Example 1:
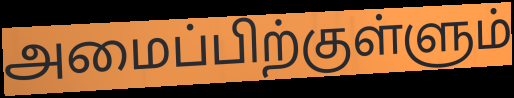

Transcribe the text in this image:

அமைப்பிற்குள்ளும்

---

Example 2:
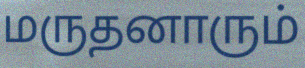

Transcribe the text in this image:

மருதனாரும்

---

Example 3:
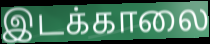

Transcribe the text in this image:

இடக்காலை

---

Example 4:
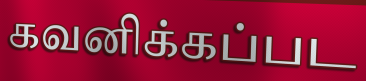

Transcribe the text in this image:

கவனிக்கப்பட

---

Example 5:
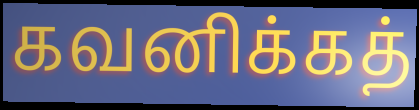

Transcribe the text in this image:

கவனிக்கத்